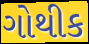
ગોથીક